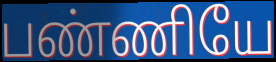
பண்ணியே